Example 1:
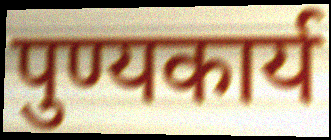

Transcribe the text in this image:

पुण्यकार्य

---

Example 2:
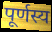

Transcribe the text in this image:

पूर्णस्य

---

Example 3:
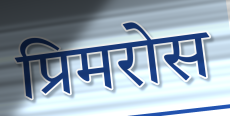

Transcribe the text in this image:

प्रिमरोस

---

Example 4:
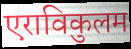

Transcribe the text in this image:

एराविकुलम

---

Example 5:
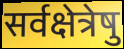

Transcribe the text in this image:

सर्वक्षेत्रेषु